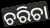
ଚରିଚା